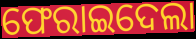
ଫେରାଇଦେଲା